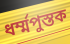
ধর্ম্মপুস্তক